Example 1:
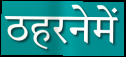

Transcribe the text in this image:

ठहरनेमें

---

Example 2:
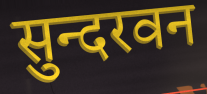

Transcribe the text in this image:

सुन्दरवन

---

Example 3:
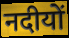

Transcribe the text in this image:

नदीयों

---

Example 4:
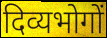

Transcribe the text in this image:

दिव्यभोगों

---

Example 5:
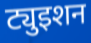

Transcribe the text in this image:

ट्युइशन